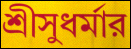
শ্রীসুধর্মার